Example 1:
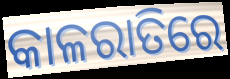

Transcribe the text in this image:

କାଳରାତିରେ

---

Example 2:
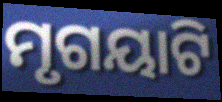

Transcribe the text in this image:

ମୃଗୟାଟି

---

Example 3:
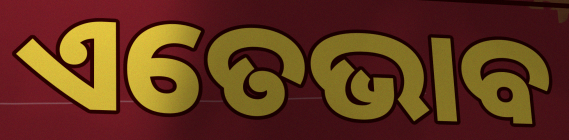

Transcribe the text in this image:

ଏତେଭାବ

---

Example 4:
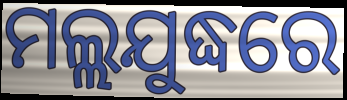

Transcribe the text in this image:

ମଲ୍ଲଯୁଦ୍ଧରେ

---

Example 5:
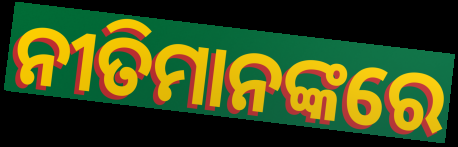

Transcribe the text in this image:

ନୀତିମାନଙ୍କରେ